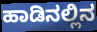
ಹಾಡಿನಲ್ಲಿನ